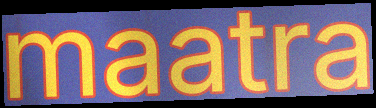
maatra